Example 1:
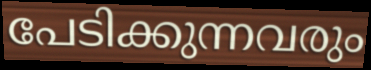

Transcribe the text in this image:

പേടിക്കുന്നവരും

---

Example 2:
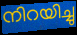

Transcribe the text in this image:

നിറയിച്ചു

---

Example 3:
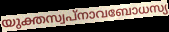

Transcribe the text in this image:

യുക്തസ്വപ്നാവബോധസ്യ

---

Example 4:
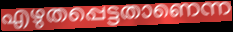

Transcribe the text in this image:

എഴുതപ്പെട്ടതാണെന്ന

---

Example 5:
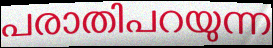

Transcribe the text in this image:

പരാതിപറയുന്ന